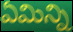
ఏమిన్ని